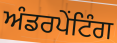
ਅੰਡਰਪੇਂਟਿੰਗ